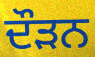
ਦੌਡ਼ਨ